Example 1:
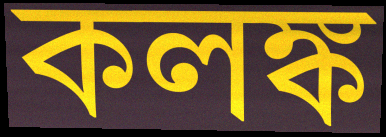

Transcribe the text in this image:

কলঙ্ক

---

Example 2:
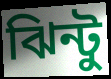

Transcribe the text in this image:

ঝিন্টু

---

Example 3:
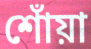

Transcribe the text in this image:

শোঁয়া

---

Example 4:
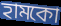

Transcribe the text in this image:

হামকো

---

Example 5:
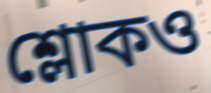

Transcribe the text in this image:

শ্লোকও